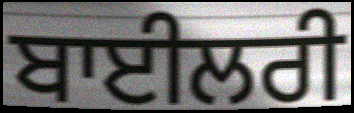
ਬਾਈਲਰੀ